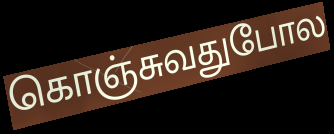
கொஞ்சுவதுபோல